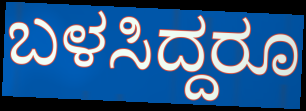
ಬಳಸಿದ್ದರೂ